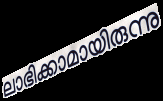
ലാഭിക്കാമായിരുന്നു